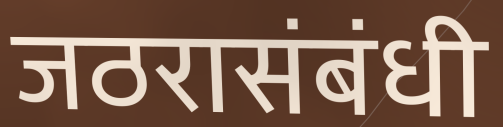
जठरासंबंधी